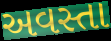
અવસ્તા